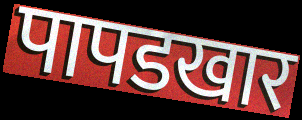
पापडखार